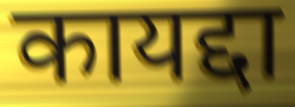
कायद्दा